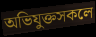
অভিযুক্তসকলে